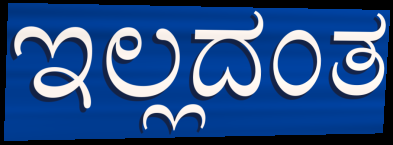
ಇಲ್ಲದಂತ